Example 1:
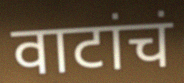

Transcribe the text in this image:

वाटांचं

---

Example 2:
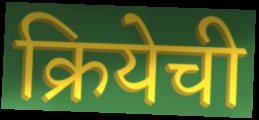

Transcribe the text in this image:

क्रियेची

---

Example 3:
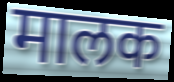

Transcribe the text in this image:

मालक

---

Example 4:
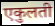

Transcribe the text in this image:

एकुलती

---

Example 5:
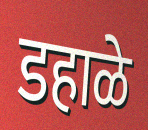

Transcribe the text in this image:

डहाळे